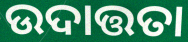
ଉଦାତ୍ତତା